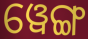
ୱେଙ୍ଗ